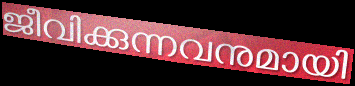
ജീവിക്കുന്നവനുമായി